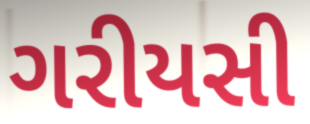
ગરીયસી